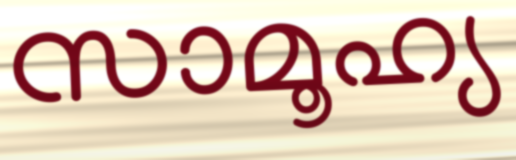
സാമൂഹ്യ